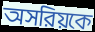
অসরিয়কে